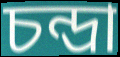
চন্দ্রা